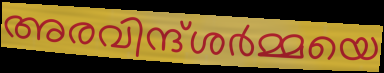
അരവിന്ദ്ശർമ്മയെ